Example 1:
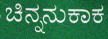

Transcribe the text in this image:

ಚಿನ್ನನುಕಾಕ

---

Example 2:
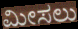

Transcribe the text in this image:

ಮೀಸಲು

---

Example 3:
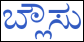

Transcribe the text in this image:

ಬ್ಲೌಸು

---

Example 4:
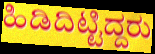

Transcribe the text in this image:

ಹಿಡಿದಿಟ್ಟಿದ್ದರು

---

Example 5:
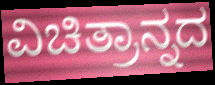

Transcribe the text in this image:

ವಿಚಿತ್ರಾನ್ನದ